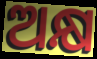
ଅକ୍ଷ